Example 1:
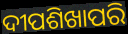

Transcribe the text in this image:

ଦୀପଶିଖାପରି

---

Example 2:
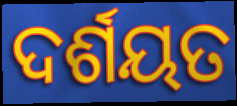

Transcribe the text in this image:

ଦର୍ଶୟତ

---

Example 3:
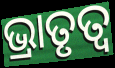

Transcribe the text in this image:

ଭ୍ରାତୃତ୍ଵ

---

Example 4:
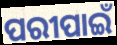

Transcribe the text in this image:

ପରୀପାଇଁ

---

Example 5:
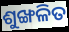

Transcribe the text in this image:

ଶୁଙ୍ଖଳିତ